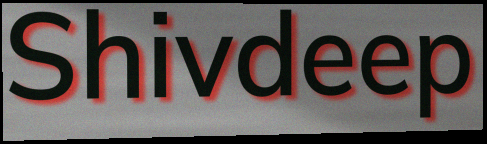
Shivdeep